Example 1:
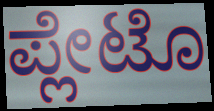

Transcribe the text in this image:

ಪ್ಲೇಟೊ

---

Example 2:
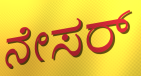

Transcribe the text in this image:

ನೇಸರ್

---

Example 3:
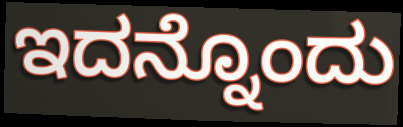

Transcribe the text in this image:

ಇದನ್ನೊಂದು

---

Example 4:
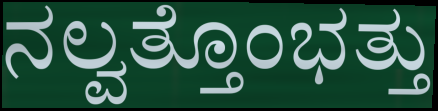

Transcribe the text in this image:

ನಲ್ವತ್ತೊಂಭತ್ತು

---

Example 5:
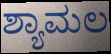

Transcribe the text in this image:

ಶ್ಯಾಮಲ